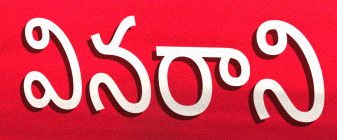
వినరాని